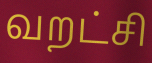
வறட்சி